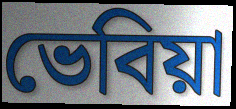
ভেবিয়া